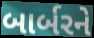
બાર્બરને